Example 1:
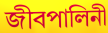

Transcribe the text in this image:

জীবপালিনী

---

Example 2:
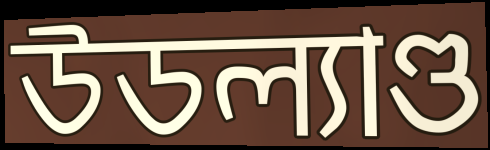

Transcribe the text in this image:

উডল্যাণ্ড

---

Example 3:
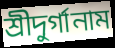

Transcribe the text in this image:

শ্রীদুর্গানাম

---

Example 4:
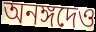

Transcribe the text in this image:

অনঙ্গদেও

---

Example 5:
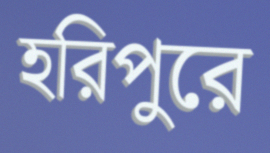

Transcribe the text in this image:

হরিপুরে